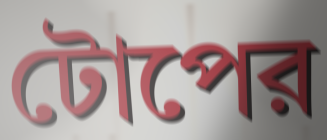
টোপের